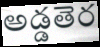
అడ్డతెర